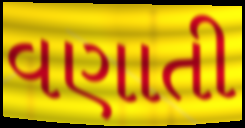
વણાતી